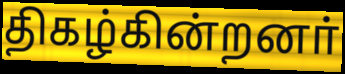
திகழ்கின்றனர்